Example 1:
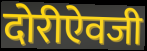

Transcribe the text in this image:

दोरीऐवजी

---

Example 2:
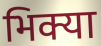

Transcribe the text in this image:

भिक्या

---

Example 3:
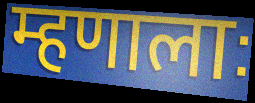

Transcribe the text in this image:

म्हणालाः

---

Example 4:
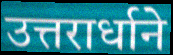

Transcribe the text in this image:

उत्तरार्धाने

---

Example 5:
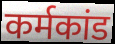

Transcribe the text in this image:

कर्मकांड